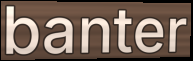
banter